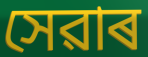
সেৱাৰ